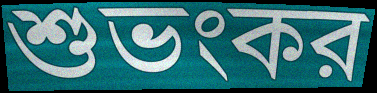
শুভংকর